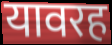
यावरह